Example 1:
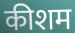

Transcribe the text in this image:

कीशम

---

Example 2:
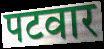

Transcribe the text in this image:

पटवार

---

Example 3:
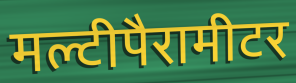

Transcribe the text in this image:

मल्टीपैरामीटर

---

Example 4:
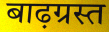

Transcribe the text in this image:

बाढ़ग्रस्त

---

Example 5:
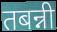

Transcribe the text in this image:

तबन्नी